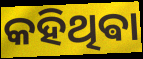
କହିଥିଵା